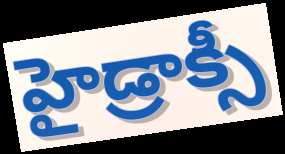
హైడ్రాక్సీ